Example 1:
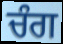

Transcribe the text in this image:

ਚੰਗ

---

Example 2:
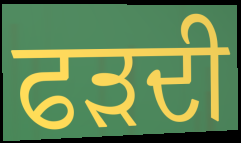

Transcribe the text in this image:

ਫੜਦੀ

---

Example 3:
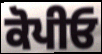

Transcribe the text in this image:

ਕੋਪੀਓ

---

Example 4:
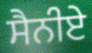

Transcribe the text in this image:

ਸੈਨੀਏ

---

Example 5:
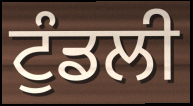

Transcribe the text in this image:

ਟੁੰਡਲੀ